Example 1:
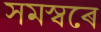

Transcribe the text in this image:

সমস্বৰে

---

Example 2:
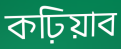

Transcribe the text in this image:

কঢ়িয়াব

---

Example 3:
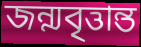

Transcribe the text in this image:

জন্মবৃত্তান্ত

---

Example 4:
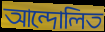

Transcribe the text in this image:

আন্দোলিত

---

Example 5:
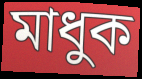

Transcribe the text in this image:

মাধুক